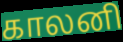
காலனி